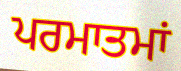
ਪਰਮਾਤਮਾਂ